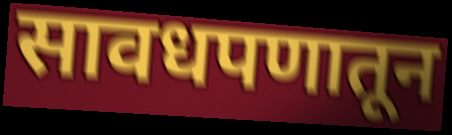
सावधपणातून